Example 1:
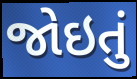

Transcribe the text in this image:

જોઇતું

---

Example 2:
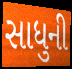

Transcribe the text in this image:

સાધુની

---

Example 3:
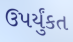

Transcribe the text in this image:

ઉપર્યુંકત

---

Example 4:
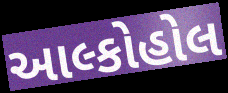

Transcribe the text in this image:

આલ્કોહોલ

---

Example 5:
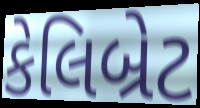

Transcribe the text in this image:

કેલિબ્રેટ